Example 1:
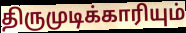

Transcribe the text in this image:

திருமுடிக்காரியும்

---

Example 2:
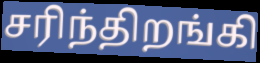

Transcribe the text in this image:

சரிந்திறங்கி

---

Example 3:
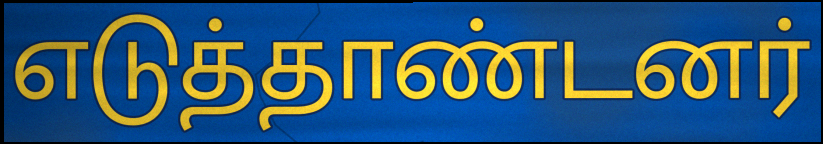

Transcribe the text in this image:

எடுத்தாண்டனர்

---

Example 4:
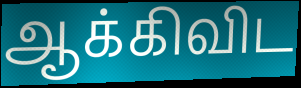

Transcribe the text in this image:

ஆக்கிவிட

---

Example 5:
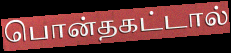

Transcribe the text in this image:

பொன்தகட்டால்